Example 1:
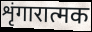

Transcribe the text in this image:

शृंगारात्मक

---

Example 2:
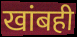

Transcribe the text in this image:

खांबही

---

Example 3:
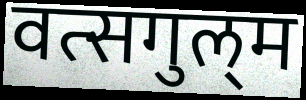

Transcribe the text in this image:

वत्सगुल्म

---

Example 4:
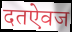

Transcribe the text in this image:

दतऐवज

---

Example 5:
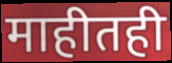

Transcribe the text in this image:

माहीतही